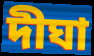
দীঘা